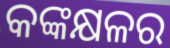
କଙ୍କକ୍ଷଳର